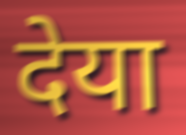
देया